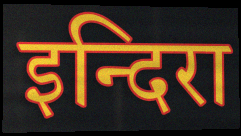
इन्दिरा